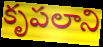
కృపలాని